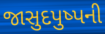
જાસુદપુષ્પની